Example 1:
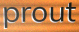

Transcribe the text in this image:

prout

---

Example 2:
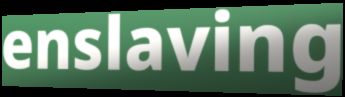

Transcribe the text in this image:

enslaving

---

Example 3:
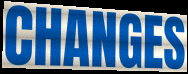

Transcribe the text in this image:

CHANGES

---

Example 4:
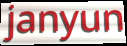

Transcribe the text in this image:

janyun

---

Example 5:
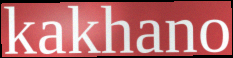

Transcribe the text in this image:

kakhano